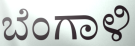
ಬೆಂಗಾಳಿ